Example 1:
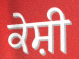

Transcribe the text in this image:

ਕੇਸ਼ੀ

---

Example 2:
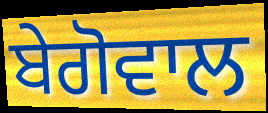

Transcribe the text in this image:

ਬੇਗੋਵਾਲ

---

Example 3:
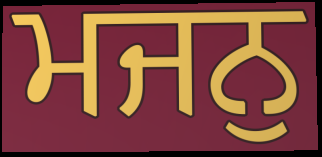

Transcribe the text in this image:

ਮਜਨੁ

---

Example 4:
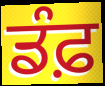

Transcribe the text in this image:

ਡੰਫ਼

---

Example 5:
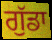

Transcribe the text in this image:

ਗੁੱਡਾ